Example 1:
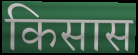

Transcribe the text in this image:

किसास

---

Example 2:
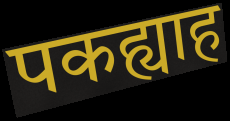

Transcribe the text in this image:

पकह्याह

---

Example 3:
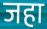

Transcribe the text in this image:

जहा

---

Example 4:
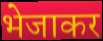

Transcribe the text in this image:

भेजाकर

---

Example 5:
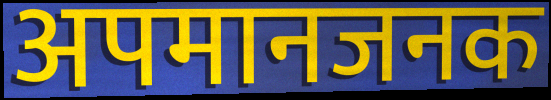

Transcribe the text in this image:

अपमानजनक